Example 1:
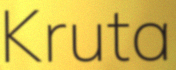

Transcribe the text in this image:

Kruta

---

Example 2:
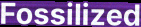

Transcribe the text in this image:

Fossilized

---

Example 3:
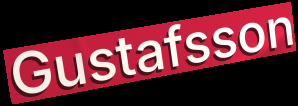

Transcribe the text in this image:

Gustafsson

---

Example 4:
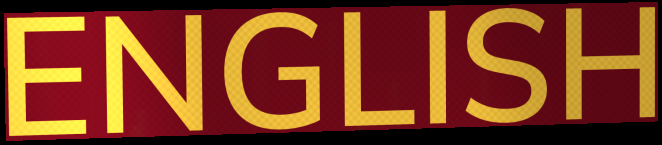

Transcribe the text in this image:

ENGLISH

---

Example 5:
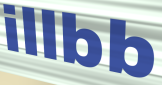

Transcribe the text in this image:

illbb